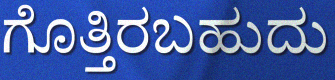
ಗೊತ್ತಿರಬಹುದು